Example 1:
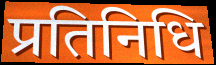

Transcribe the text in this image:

प्रतिनिधि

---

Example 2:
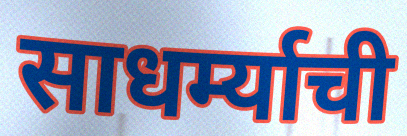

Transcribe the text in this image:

साधर्म्याची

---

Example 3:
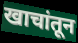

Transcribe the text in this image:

खाचांतून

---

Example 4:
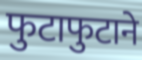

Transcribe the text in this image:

फुटाफुटाने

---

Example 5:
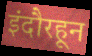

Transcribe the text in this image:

इंदौरहून